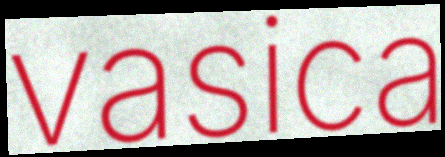
vasica